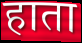
हाता